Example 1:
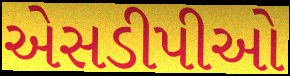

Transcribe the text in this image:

એસડીપીઓ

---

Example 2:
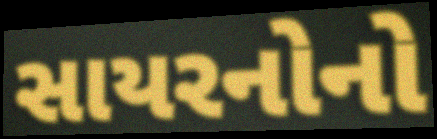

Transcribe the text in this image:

સાયરનોનો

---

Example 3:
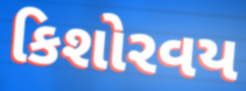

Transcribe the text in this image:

કિશોરવય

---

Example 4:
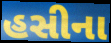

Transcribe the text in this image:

હસીના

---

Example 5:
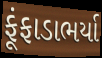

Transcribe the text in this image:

ફૂંફાડાભર્યા